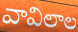
వావిలాల